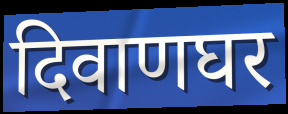
दिवाणघर